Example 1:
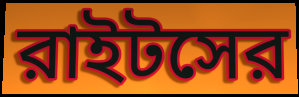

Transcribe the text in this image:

রাইটসের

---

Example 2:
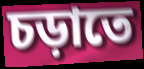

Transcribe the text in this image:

চড়াতে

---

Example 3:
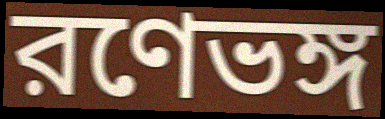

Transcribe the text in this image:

রণেভঙ্গ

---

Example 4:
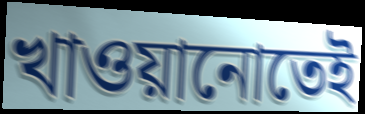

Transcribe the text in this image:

খাওয়ানোতেই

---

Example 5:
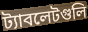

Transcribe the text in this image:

ট্যাবলেটগুলি